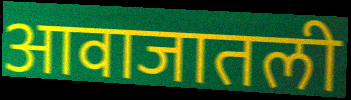
आवाजातली